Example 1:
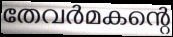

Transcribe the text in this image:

തേവർമകന്റെ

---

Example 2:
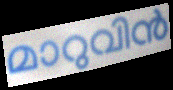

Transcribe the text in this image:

മാറുവിൻ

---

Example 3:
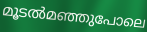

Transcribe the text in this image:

മൂടൽമഞ്ഞുപോലെ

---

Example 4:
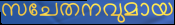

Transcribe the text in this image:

സചേതനവുമായ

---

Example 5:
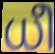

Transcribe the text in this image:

ധീ